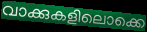
വാക്കുകളിലൊക്കെ